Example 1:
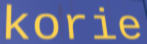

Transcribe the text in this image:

korie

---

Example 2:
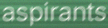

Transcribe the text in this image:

aspirants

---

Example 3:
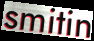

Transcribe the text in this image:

smitin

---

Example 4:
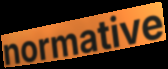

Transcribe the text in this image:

normative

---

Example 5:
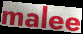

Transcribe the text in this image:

malee